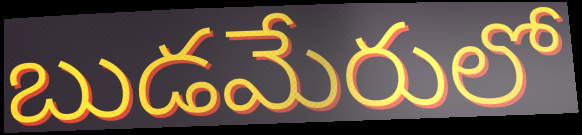
బుడమేరులో